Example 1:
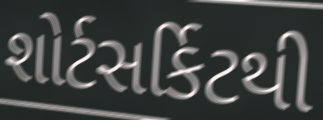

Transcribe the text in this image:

શોર્ટસર્કિટથી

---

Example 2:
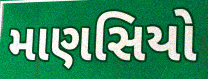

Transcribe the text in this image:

માણસિયો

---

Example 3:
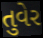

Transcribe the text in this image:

તુવેર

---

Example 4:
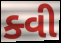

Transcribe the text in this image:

ક્વી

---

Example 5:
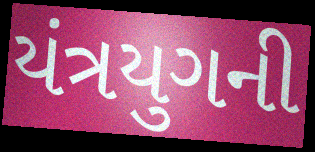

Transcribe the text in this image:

યંત્રયુગની